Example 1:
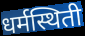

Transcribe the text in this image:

धर्मस्थिती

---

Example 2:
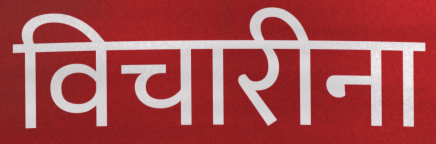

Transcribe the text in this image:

विचारीना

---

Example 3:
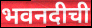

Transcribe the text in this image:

भवनदीची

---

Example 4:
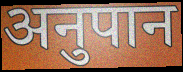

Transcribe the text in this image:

अनुपान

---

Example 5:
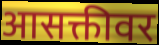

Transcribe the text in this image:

आसक्तीवर